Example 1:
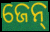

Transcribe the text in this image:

ଜେନ୍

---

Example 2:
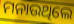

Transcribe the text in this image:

ମନାଉଥିଲେ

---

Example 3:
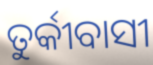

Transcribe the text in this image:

ତୁର୍କୀବାସୀ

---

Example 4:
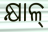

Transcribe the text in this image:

କ୍ଷାଳ୍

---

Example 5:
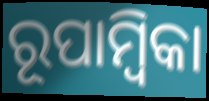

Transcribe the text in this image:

ରୂପାମ୍ୱିକା